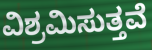
ವಿಶ್ರಮಿಸುತ್ತವೆ